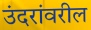
उंदरांवरील